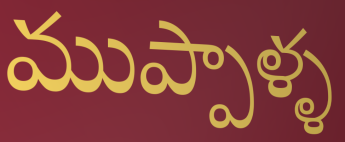
ముప్పాళ్ళ